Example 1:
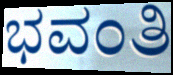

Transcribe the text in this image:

ಭವಂತಿ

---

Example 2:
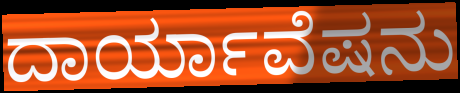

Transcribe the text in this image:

ದಾರ್ಯಾವೆಷನು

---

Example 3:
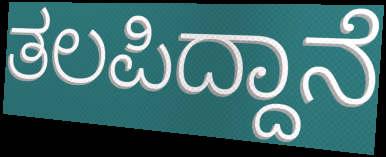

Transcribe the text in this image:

ತಲಪಿದ್ದಾನೆ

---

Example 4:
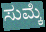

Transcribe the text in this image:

ಸುಮ್ಕೆ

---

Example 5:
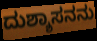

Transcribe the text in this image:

ದುಶ್ಶಾಸನನು